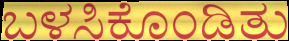
ಬಳಸಿಕೊಂಡಿತು